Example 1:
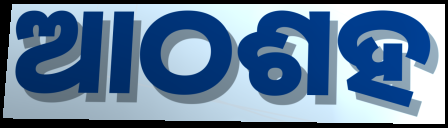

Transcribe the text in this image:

ଆଠଶହ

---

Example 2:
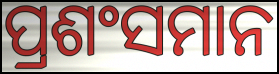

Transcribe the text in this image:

ପ୍ରଶଂସମାନ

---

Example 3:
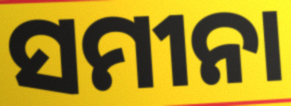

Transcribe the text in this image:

ସମୀନା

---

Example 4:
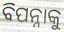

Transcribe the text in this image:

ବିପନ୍ନାକୁ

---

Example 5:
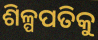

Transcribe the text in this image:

ଶିଳ୍ପପତିକୁ